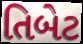
તિબેટ